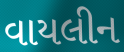
વાયલીન